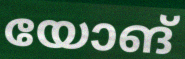
യോങ്